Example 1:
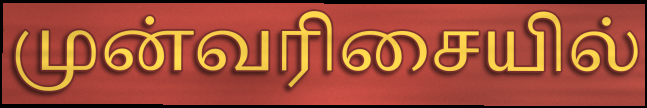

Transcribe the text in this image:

முன்வரிசையில்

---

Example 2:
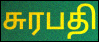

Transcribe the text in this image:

சுரபதி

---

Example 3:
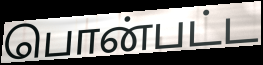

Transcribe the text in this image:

பொன்பட்ட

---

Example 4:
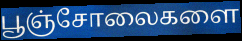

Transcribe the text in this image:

பூஞ்சோலைகளை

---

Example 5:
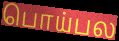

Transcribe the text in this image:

பொய்பல